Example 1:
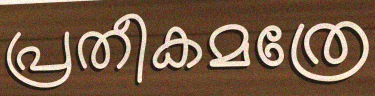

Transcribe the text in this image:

പ്രതീകമത്രേ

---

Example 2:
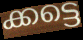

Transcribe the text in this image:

ക്കട്ടെ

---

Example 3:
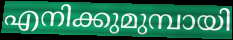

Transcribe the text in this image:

എനിക്കുമുമ്പായി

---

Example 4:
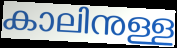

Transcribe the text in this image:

കാലിനുള്ള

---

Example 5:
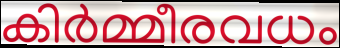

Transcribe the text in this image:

കിർമ്മീരവധം